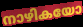
നാഴികയോ